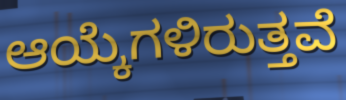
ಆಯ್ಕೆಗಳಿರುತ್ತವೆ